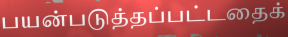
பயன்படுத்தப்பட்டதைக்